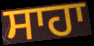
ਸਾਹਾ